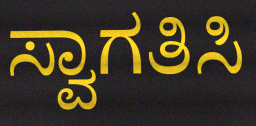
ಸ್ವಾಗತಿಸಿ